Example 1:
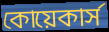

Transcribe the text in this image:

কোয়েকার্স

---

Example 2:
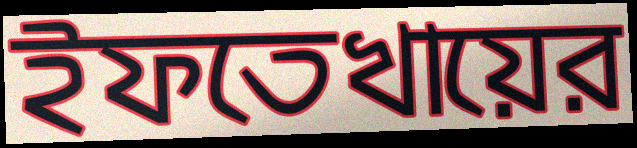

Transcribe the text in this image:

ইফতেখায়ের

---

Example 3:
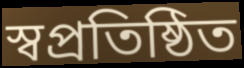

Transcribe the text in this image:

স্বপ্রতিষ্ঠিত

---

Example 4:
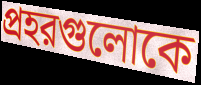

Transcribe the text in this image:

প্রহরগুলোকে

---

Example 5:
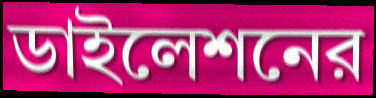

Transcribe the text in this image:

ডাইলেশনের